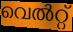
വെൽറ്റ്